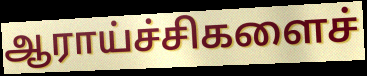
ஆராய்ச்சிகளைச்